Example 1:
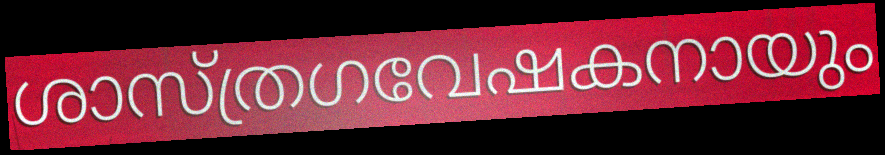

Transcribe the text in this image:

ശാസ്ത്രഗവേഷകനായും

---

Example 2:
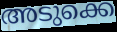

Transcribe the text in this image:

അടുക്കെ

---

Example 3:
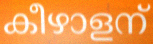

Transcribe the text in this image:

കീഴാളന്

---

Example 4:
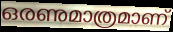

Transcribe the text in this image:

ഒരണുമാത്രമാണ്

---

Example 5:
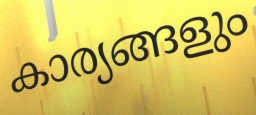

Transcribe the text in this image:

കാര്യങ്ങളും